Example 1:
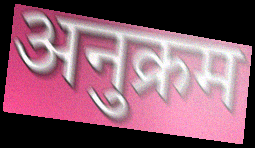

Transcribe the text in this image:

अनुक्रम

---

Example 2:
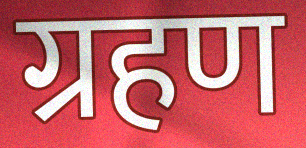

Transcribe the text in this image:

ग्रहण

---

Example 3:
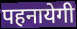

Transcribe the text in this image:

पहनायेगी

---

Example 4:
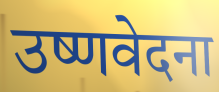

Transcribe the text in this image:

उष्णवेदना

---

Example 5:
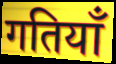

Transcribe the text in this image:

गतियाँ